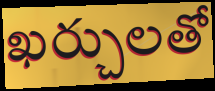
ఖర్చులతో